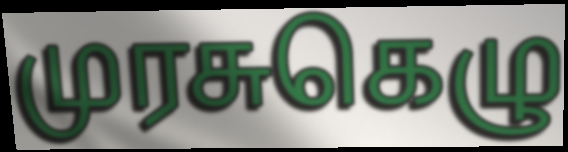
முரசுகெழு